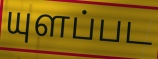
யுளப்பட